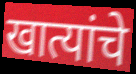
खात्यांचे